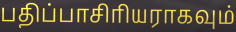
பதிப்பாசிரியராகவும்